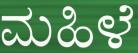
ಮಹಿಳೆ